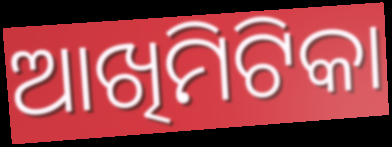
ଆଖିମିଟିକା